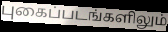
புகைப்படங்களிலும்